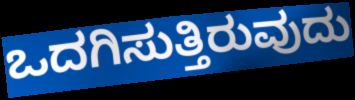
ಒದಗಿಸುತ್ತಿರುವುದು